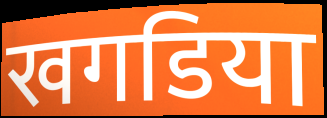
खगडिया